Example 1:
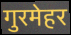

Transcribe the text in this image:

गुरमेहर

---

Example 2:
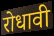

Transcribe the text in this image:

रोधावी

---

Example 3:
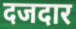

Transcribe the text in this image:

दजदार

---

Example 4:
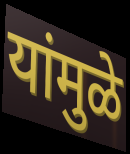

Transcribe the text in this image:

यांमुळे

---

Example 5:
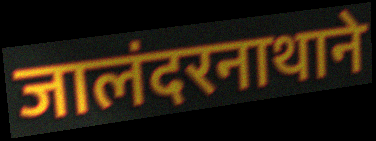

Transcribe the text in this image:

जालंदरनाथाने